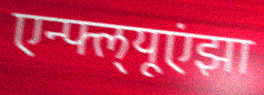
एन्फ्ल्यूएंझा